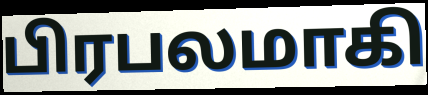
பிரபலமாகி